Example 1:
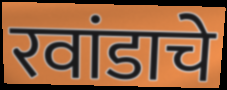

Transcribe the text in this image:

रवांडाचे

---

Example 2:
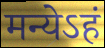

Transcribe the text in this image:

मन्येऽहं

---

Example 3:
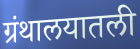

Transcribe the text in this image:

ग्रंथालयातली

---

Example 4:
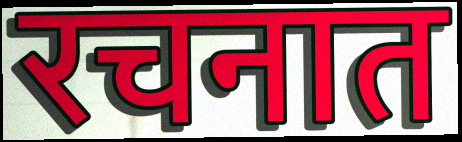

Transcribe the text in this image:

रचनात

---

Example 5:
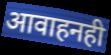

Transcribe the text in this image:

आवाहनही